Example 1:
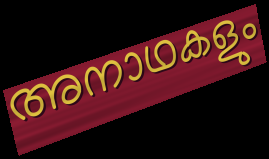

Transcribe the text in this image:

അനാഥകളും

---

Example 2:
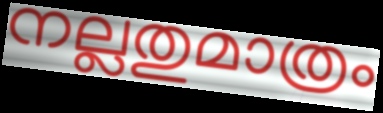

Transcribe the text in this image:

നല്ലതുമാത്രം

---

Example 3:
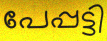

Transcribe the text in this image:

പേപ്പട്ടി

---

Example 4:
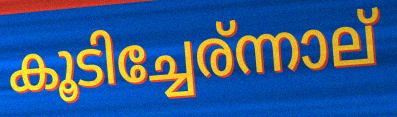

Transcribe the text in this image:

കൂടിച്ചേര്ന്നാല്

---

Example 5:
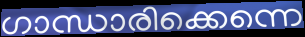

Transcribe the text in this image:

ഗാന്ധാരിക്കെന്നെ